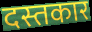
दस्‍तकार